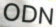
ODN